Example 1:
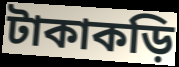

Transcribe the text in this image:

টাকাকড়ি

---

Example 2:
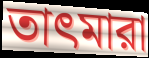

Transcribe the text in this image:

তাৎমারা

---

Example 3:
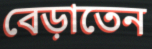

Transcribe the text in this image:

বেড়াতেন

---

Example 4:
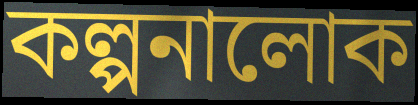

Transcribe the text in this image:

কল্পনালোক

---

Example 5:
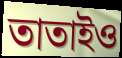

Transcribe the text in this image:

তাতাইও